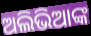
ଅଲିଭିଆଙ୍କ